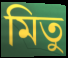
মিতু